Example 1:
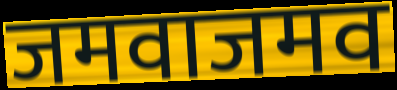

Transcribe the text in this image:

जमवाजमव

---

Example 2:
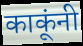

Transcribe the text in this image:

काकूंनी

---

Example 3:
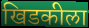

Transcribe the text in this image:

खिडकीला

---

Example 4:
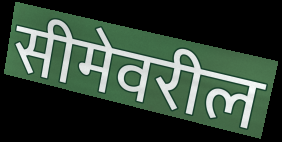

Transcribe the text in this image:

सीमेवरील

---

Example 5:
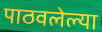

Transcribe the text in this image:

पाठवलेल्या